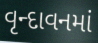
વૃન્દાવનમાં